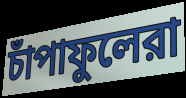
চাঁপাফুলেরা